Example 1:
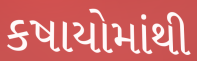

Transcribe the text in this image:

કષાયોમાંથી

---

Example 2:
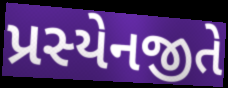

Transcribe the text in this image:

પ્રસ્યેનજીતે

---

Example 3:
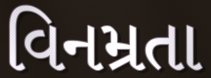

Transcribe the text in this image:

વિનમ્રતા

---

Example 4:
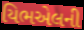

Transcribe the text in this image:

યિભએલની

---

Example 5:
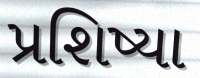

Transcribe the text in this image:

પ્રશિષ્યા